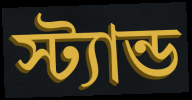
স্ট্যান্ড